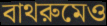
বাথরুমেও